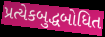
પ્રત્યેકબુદ્ધબોધિત